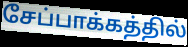
சேப்பாக்கத்தில்